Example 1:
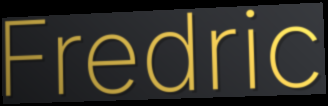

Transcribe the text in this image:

Fredric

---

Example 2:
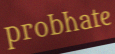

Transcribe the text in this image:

probhate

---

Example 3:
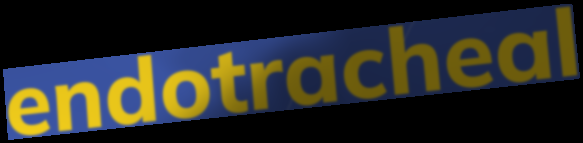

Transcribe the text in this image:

endotracheal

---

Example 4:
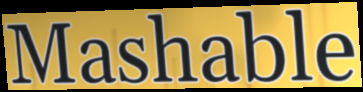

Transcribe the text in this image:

Mashable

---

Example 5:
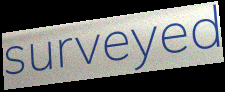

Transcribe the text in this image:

surveyed